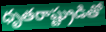
ధృతరాష్ట్రుడితో